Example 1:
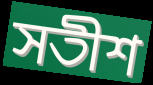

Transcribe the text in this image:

সতীশ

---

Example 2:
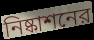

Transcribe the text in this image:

নিষ্কাশনের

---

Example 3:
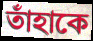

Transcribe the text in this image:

তাঁহাকে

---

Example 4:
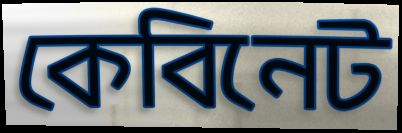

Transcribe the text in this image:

কেবিনেট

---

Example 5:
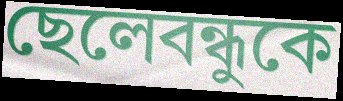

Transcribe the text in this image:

ছেলেবন্ধুকে